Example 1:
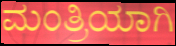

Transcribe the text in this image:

ಮಂತ್ರಿಯಾಗಿ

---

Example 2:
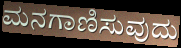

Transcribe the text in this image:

ಮನಗಾಣಿಸುವುದು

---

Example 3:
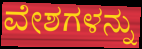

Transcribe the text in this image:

ವೇಶಗಳನ್ನು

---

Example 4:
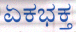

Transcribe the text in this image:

ಏಕಭಕ್ತ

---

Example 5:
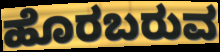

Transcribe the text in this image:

ಹೊರಬರುವ